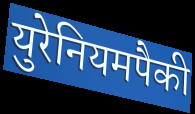
युरेनियमपैकी